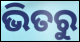
ଭିତରୁ